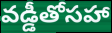
వడ్డీతోసహా